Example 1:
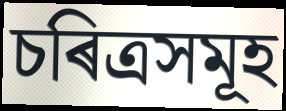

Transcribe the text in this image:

চৰিত্ৰসমূহ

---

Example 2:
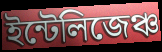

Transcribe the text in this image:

ইন্টেলিজেঞ্চ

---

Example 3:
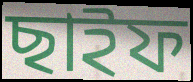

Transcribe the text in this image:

ছাইফ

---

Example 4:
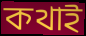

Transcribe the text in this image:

কথাই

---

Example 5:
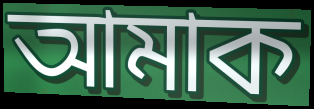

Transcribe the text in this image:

আমাক